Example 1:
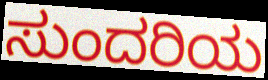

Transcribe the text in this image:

ಸುಂದರಿಯ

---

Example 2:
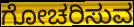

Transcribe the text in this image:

ಗೋಚರಿಸುವ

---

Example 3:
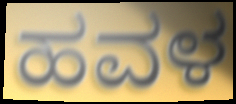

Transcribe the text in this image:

ಹವಳ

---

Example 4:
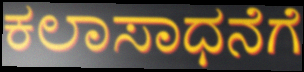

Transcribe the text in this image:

ಕಲಾಸಾಧನೆಗೆ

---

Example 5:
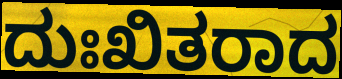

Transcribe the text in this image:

ದುಃಖಿತರಾದ